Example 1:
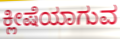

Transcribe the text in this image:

ಕ್ಲೀಷೆಯಾಗುವ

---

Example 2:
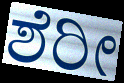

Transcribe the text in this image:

ಶೆರೀ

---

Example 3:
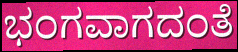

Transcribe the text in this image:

ಭಂಗವಾಗದಂತೆ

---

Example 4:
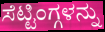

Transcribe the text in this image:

ಸೆಟ್ಟಿಂಗ್ಗಳನ್ನು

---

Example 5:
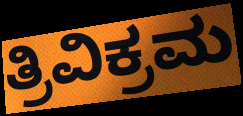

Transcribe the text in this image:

ತ್ರಿವಿಕ್ರಮ